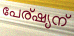
പേര്ഷ്യന്